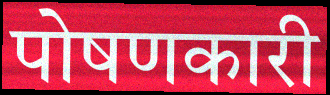
पोषणकारी